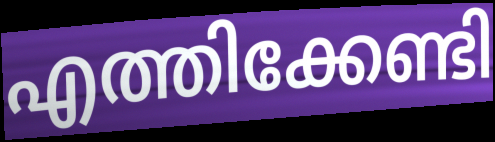
എത്തിക്കേണ്ടി